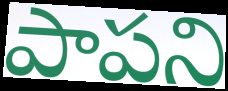
పాపని